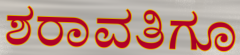
ಶರಾವತಿಗೂ